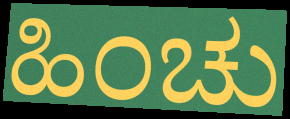
ಹಿಂಚು